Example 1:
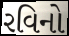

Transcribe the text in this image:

રવિનો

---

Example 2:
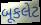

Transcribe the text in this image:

બૂકલેટ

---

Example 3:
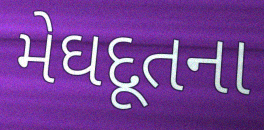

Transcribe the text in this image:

મેઘદૂતના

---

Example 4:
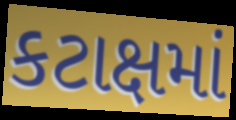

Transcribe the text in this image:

કટાક્ષમાં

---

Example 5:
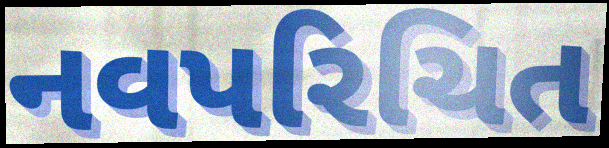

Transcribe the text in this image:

નવપરિચિત